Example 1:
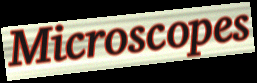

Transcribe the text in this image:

Microscopes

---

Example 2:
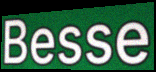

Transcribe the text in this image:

Besse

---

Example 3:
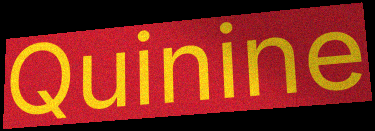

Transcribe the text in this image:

Quinine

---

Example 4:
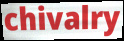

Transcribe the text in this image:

chivalry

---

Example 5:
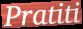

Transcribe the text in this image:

Pratiti